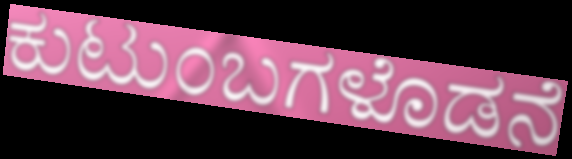
ಕುಟುಂಬಗಳೊಡನೆ